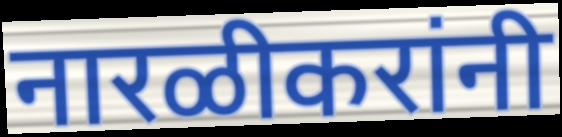
नारळीकरांनी